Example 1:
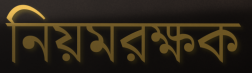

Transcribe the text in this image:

নিয়মরক্ষক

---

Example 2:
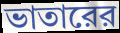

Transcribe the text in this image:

ভাতারের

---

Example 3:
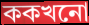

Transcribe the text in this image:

ককখনো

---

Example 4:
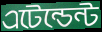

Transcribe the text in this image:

এটেন্ডেন্ট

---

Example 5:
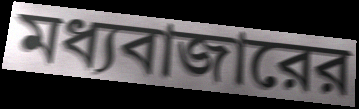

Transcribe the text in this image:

মধ্যবাজারের